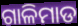
ଗାଳିମାଡ